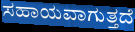
ಸಹಾಯವಾಗುತ್ತದೆ